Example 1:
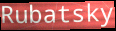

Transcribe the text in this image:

Rubatsky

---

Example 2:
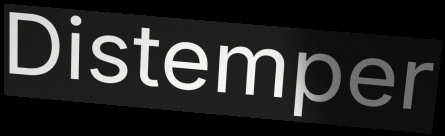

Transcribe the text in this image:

Distemper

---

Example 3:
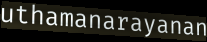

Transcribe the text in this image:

uthamanarayanan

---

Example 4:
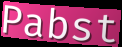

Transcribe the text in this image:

Pabst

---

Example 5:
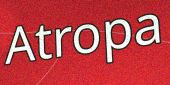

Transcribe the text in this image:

Atropa